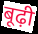
बूढ़ी